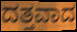
ದತ್ತವಾದ